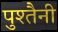
पुश्‍तैनी